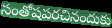
సంతోషపరచినందుకు